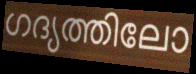
ഗദ്യത്തിലോ